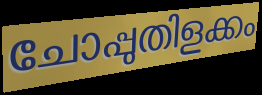
ചോപ്പുതിളക്കം